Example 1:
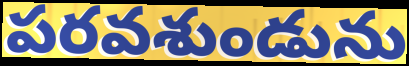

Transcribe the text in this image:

పరవశుండును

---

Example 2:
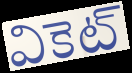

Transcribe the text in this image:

వికెట్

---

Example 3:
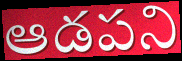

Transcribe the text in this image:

ఆడపని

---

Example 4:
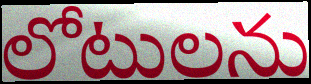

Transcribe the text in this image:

లోటులను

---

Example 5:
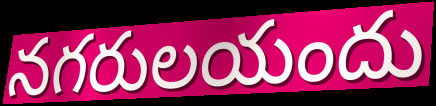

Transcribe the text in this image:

నగరులయందు